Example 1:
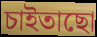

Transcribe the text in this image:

চাইতাছো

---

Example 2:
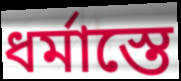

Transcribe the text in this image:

ধর্মাস্তে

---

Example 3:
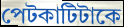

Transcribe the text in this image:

পেটকাটিটাকে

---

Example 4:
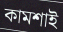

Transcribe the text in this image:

কামশাই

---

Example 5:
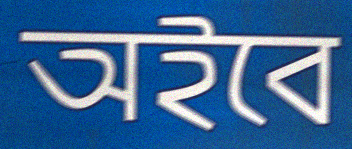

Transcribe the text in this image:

অইবে